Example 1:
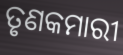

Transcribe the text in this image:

ତୃଣକମାରୀ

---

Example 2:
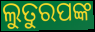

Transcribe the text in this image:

ଲୁତୁରପଙ୍କ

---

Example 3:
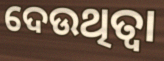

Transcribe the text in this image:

ଦେଉଥିତ୍ବା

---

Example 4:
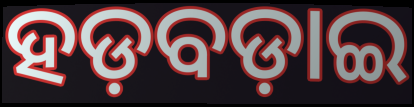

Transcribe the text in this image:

ହଡ଼ବଡ଼ାଇ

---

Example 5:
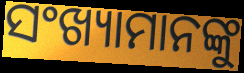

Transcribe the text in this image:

ସଂଖ୍ୟାମାନଙ୍କୁ